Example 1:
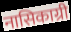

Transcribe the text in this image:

नासिकाग्री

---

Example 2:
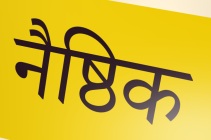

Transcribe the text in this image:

नैष्ठिक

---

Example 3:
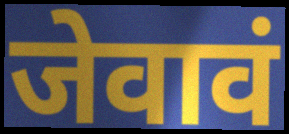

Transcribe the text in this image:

जेवावं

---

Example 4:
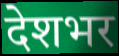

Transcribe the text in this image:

देशभर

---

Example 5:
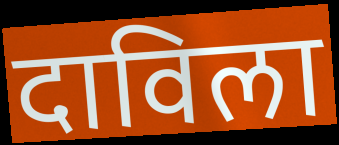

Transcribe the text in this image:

दाविला